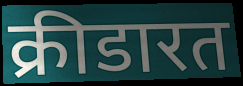
क्रीडारत